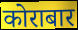
कोराबार